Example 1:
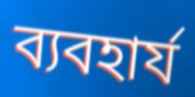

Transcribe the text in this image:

ব্যবহার্য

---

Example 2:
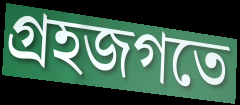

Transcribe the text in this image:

গ্রহজগতে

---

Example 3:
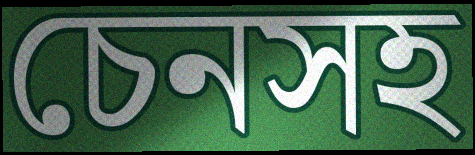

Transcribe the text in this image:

চেনসহ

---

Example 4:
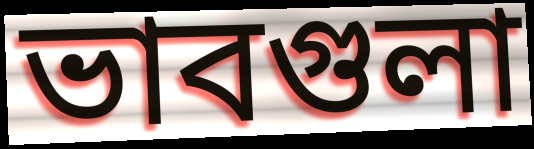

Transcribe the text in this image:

ভাবগুলা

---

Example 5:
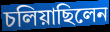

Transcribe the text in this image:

চলিয়াছিলেন